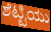
ಶೆಟ್ಟಿಯು